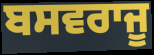
ਬਸਵਰਾਜੂ